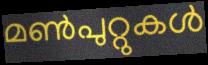
മൺപുറ്റുകൾ